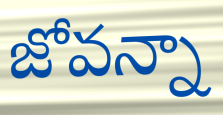
జోవన్నా